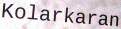
Kolarkaran